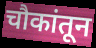
चौकांतून